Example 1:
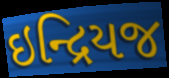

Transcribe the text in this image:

ઇન્દ્રિયજ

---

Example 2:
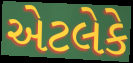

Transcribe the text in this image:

એટલેકે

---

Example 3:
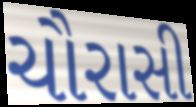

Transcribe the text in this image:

ચૌરાસી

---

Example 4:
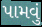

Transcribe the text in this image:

પામવું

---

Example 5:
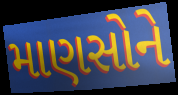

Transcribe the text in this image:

માણસોને